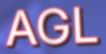
AGL